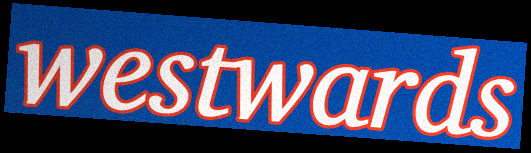
westwards